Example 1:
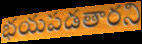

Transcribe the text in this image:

భయపడతారని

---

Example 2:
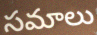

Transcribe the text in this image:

సమాలు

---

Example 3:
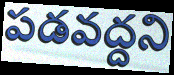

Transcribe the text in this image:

పడవద్దని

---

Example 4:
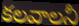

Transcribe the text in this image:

కలవాలనీ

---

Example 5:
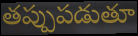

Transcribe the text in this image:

తప్పుపడుతూ